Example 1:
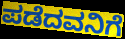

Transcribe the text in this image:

ಪಡೆದವನಿಗೆ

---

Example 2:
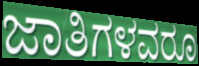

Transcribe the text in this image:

ಜಾತಿಗಳವರೂ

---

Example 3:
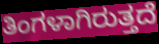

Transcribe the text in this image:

ತಿಂಗಳಾಗಿರುತ್ತದೆ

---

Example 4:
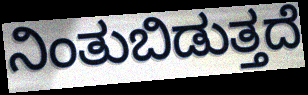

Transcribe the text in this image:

ನಿಂತುಬಿಡುತ್ತದೆ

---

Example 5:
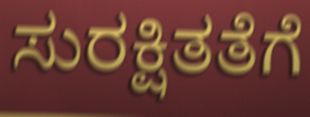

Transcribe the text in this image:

ಸುರಕ್ಷಿತತೆಗೆ